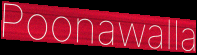
Poonawalla